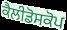
ਕੈਲੀਡੋਸਕੋਪ